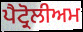
ਪੈਟ੍ਰੋਲੀਅਮ